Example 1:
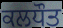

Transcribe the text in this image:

ਕਲਧੌਤ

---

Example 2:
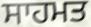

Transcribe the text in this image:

ਸਾਹਮਤ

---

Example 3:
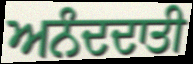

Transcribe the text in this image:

ਅਨੰਦਦਾਤੀ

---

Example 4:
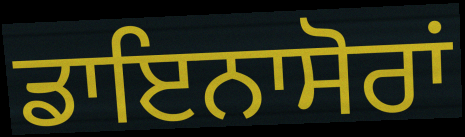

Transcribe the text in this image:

ਡਾਇਨਾਸੋਰਾਂ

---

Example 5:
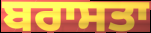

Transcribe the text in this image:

ਬਰਾਸਤਾ